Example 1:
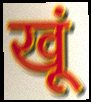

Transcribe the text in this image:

खूं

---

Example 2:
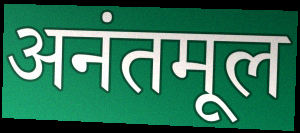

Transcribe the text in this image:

अनंतमूल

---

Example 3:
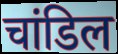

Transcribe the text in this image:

चांडिल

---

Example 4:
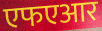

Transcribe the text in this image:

एफएआर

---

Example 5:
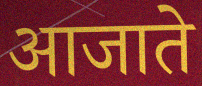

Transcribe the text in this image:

आजाते